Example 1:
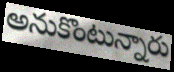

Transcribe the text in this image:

అనుకొంటున్నారు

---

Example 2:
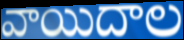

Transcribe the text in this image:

వాయిదాల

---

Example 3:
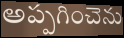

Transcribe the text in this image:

అప్పగించెను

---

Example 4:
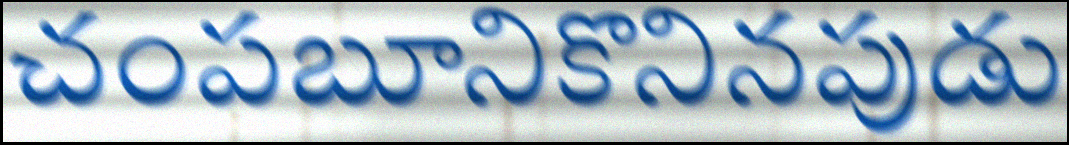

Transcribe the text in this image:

చంపబూనికొనినపుడు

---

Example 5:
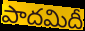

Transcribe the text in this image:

పాదమిదీ